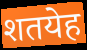
शतयेह